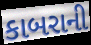
કાબરાની